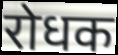
रोधक